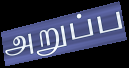
அறுப்ப